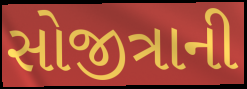
સોજીત્રાની